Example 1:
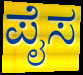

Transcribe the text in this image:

ಪೈಸ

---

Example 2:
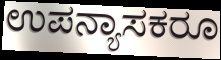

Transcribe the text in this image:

ಉಪನ್ಯಾಸಕರೂ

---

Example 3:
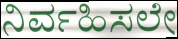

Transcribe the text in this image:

ನಿರ್ವಹಿಸಲೇ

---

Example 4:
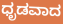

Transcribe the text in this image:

ಧೃಡವಾದ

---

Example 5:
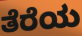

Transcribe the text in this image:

ತೆರೆಯ